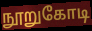
நூறுகோடி